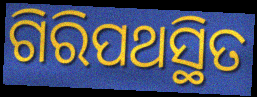
ଗିରିପଥସ୍ଥିତ